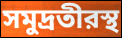
সমুদ্রতীরস্থ